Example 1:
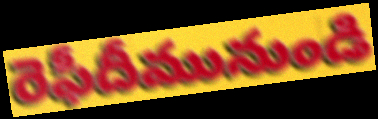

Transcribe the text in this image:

రెఫీదీమునుండి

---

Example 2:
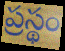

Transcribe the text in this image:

ప్రస్థం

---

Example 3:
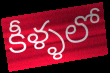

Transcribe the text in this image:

కీళ్ళలో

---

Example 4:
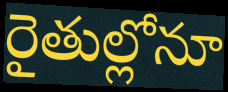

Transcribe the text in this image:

రైతుల్లోనూ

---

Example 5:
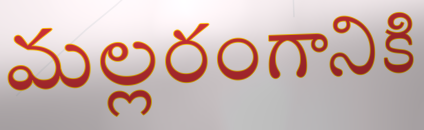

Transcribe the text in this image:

మల్లరంగానికి